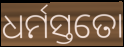
ଧର୍ମସ୍ତତୋ